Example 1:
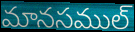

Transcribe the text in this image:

మానసముల్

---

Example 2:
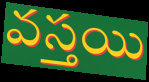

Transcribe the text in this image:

వస్తయి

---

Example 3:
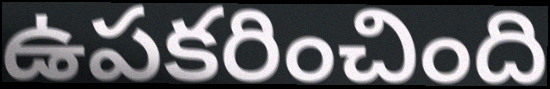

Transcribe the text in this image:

ఉపకరించింది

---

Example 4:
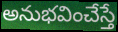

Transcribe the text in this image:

అనుభవించేస్తే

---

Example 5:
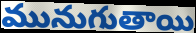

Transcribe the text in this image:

మునుగుతాయి